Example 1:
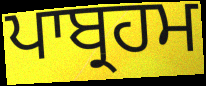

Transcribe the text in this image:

ਪਾਬ੍ਰਹਮ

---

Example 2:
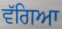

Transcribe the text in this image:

ਵੱਗਿਆ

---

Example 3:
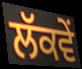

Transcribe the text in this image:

ਲੱਕਵੇਂ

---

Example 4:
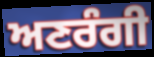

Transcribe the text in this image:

ਅਣਰੰਗੀ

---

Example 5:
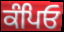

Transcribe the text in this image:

ਕੰਪਿਓ